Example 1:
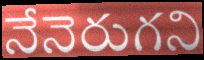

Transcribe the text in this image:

నేనెరుగని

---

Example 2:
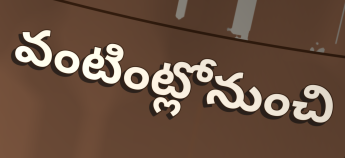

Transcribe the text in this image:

వంటింట్లోనుంచి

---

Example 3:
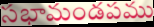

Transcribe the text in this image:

సభామండపము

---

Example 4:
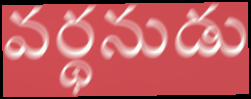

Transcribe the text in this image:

వర్థనుడు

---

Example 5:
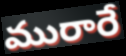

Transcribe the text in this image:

మురారే